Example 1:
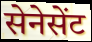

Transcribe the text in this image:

सेनेसेंट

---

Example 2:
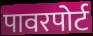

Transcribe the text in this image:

पावरपोर्ट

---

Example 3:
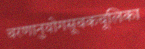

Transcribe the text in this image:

चरणानुयोगसूचकचूलिका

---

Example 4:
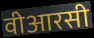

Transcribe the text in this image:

वीआरसी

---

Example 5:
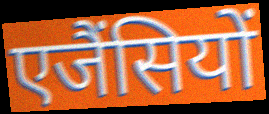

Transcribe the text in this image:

एजैंसियों